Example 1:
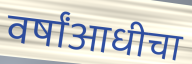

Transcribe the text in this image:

वर्षांआधीचा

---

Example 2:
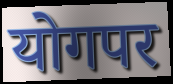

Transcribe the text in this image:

योगपर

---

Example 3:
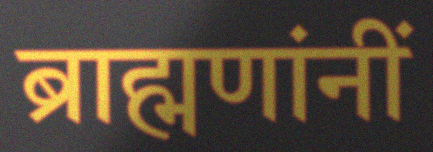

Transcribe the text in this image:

ब्राह्मणांनीं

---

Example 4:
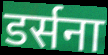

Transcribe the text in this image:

डर्सना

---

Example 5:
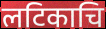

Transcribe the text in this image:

लटिकाचि